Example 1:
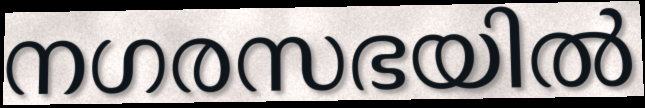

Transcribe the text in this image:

നഗരസഭയിൽ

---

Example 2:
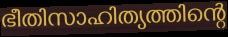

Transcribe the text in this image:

ഭീതിസാഹിത്യത്തിന്റെ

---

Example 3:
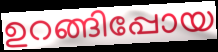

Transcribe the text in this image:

ഉറങ്ങിപ്പോയ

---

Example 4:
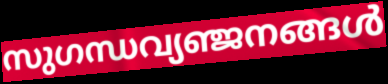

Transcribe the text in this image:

സുഗന്ധവ്യഞ്ജനങ്ങൾ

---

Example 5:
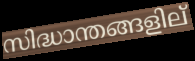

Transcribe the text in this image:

സിദ്ധാന്തങ്ങളില്